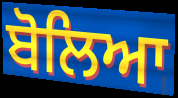
ਬੋਲਿਆ